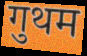
गुथम